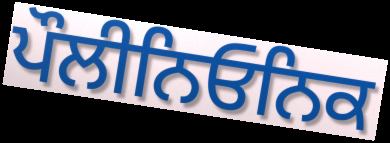
ਪੌਲੀਨਿਓਨਿਕ